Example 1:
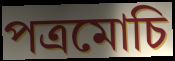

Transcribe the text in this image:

পত্রমোচি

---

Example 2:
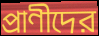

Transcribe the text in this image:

প্রাণীদের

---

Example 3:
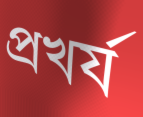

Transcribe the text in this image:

প্রখর্য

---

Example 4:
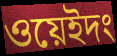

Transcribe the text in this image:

ওয়েইদং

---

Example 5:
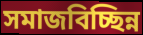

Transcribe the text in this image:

সমাজবিচ্ছিন্ন